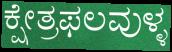
ಕ್ಷೇತ್ರಫಲವುಳ್ಳ